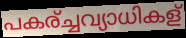
പകര്ച്ചവ്യാധികള്